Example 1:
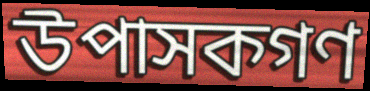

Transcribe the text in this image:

উপাসকগণ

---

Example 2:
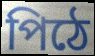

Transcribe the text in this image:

পিঠে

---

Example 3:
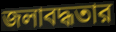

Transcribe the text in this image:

জলাবদ্ধতার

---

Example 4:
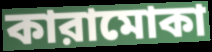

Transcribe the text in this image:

কারামোকা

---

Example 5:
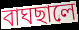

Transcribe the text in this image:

বাঘছালে